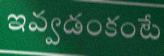
ఇవ్వడంకంటే